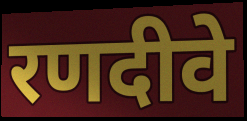
रणदीवे